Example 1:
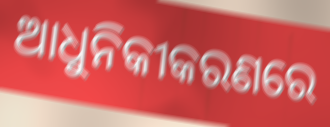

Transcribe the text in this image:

ଆଧୁନିକୀକରଣରେ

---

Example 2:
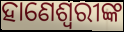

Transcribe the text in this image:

ହାଣେଶ୍ୱରୀଙ୍କ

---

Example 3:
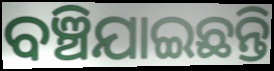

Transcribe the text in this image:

ବଞ୍ଚିଯାଇଛନ୍ତି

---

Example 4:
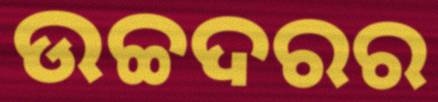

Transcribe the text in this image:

ଉଚ୍ଚଦରର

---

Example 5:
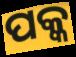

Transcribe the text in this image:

ପକ୍କ